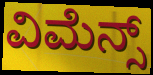
ವಿಮೆನ್ಸ್